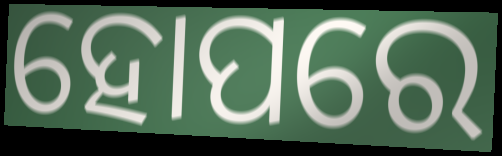
ହୋପରେ